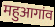
महुआगांव